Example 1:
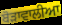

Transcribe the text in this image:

ਬੋੜਾਵਾਲੀਆ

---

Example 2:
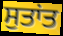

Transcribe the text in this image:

ਸੁਤਾਂਤ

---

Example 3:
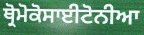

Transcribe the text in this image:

ਥ੍ਰੋਮੋਕੋਸਾਈਟੋਨੀਆ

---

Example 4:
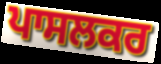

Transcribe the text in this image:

ਪਾਸਲਕਰ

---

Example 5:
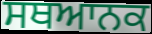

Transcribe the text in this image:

ਸਥਆਨਕ